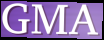
GMA